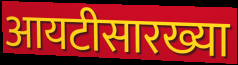
आयटीसारख्या